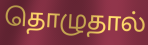
தொழுதால்